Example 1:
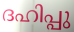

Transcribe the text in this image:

ദഹിപ്പു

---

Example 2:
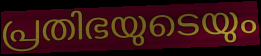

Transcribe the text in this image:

പ്രതിഭയുടെയും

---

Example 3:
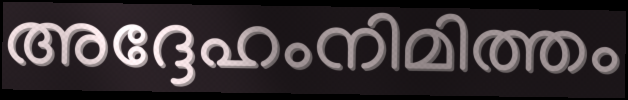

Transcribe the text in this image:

അദ്ദേഹംനിമിത്തം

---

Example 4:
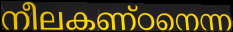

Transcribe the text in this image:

നീലകണ്ഠനെന്ന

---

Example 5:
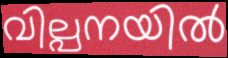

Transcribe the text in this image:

വില്പനയിൽ